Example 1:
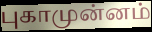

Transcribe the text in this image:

புகாமுன்னம்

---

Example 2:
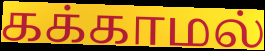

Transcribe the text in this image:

கக்காமல்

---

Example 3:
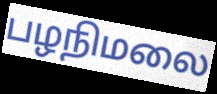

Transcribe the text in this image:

பழநிமலை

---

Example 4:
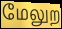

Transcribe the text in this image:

மேலுற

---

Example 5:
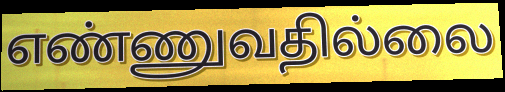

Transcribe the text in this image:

எண்ணுவதில்லை